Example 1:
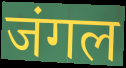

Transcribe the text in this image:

जंगल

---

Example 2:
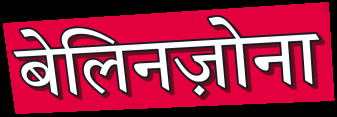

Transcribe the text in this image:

बेलिनज़ोना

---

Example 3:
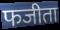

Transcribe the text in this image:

फजीता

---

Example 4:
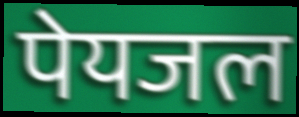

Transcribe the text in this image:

पेयजल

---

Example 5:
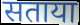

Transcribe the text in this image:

सताया